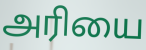
அரியை